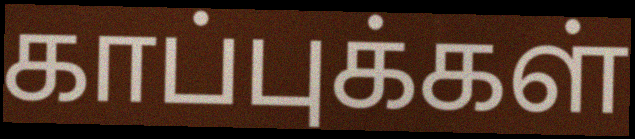
காப்புக்கள்